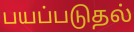
பயப்படுதல்